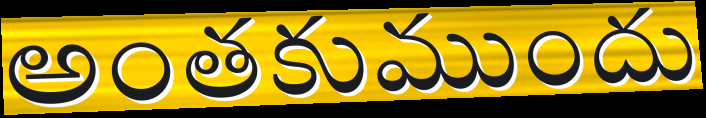
అంతకుముందు